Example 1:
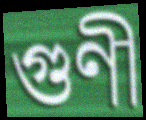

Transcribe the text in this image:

গুণী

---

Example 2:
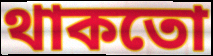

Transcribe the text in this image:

থাকতো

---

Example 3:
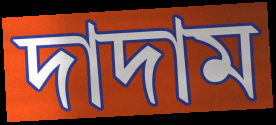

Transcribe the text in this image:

দাদাম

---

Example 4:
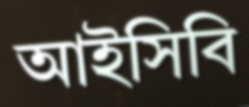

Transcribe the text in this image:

আইসিবি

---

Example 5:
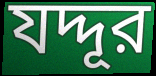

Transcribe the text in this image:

যদ্দূর